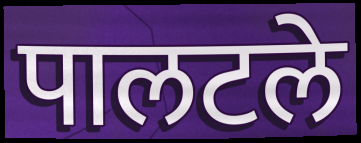
पालटले